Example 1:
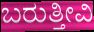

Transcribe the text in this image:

ಬರುತ್ತೀವಿ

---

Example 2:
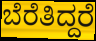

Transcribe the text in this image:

ಬೆರೆತಿದ್ದರೆ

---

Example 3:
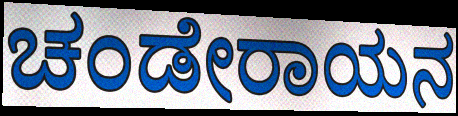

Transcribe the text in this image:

ಚಂಡೇರಾಯನ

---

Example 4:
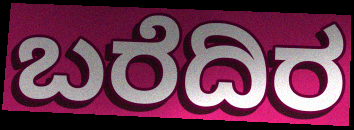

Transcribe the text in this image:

ಬರೆದಿರ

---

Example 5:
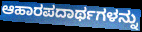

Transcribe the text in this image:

ಆಹಾರಪದಾರ್ಥಗಳನ್ನು